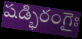
షడ్భిరంగైః